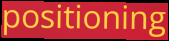
positioning